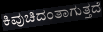
ಕಿವುಚಿದಂತಾಗುತ್ತದೆ